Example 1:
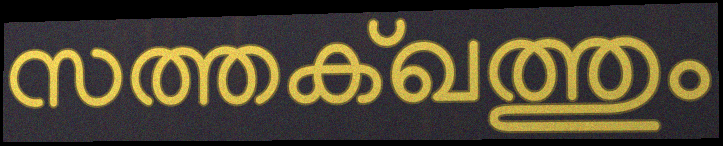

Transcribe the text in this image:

സത്തക്ഖത്തും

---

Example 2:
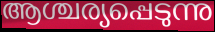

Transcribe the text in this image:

ആശ്ചര്യപ്പെടുന്നു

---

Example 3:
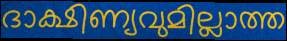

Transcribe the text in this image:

ദാക്ഷിണ്യവുമില്ലാത്ത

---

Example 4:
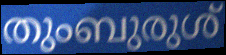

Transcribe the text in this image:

തുംബുരുശ്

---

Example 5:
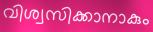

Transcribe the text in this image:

വിശ്വസിക്കാനാകും